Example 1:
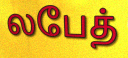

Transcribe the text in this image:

லபேத்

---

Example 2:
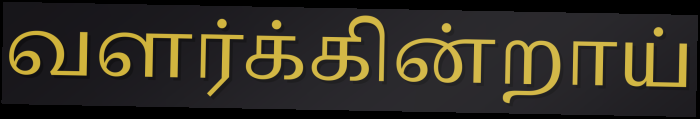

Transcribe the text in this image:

வளர்க்கின்றாய்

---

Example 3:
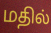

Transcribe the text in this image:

மதில்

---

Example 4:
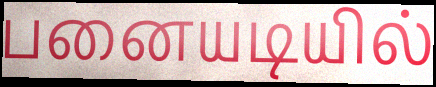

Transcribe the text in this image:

பனையடியில்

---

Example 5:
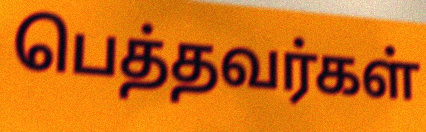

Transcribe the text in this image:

பெத்தவர்கள்